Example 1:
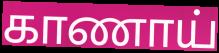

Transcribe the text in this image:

காணாய்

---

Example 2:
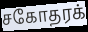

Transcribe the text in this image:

சகோதரக்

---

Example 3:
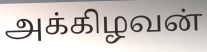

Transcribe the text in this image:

அக்கிழவன்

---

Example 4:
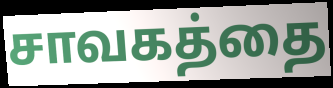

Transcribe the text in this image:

சாவகத்தை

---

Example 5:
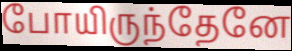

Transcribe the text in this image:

போயிருந்தேனே